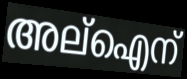
അല്ഐന്